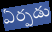
ఏర్పడు